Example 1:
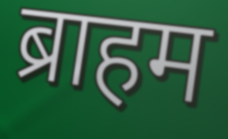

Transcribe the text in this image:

ब्राहम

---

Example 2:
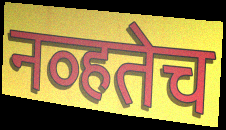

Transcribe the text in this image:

नव्हतेच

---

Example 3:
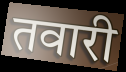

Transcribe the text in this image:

तवारी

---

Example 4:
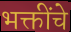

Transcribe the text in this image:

भक्तींचे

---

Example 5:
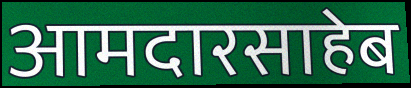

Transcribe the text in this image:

आमदारसाहेब